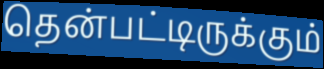
தென்பட்டிருக்கும்